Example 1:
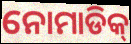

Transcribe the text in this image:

ନୋମାଡିକ୍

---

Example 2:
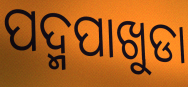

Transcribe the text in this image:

ପଦ୍ମପାଖୁଡା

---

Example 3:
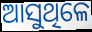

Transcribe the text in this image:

ଆସୁଥିଳେ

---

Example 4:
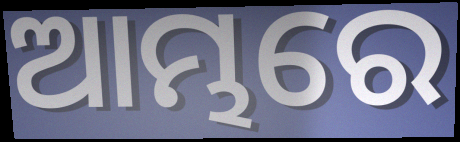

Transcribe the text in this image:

ଆମ୍ଭରେ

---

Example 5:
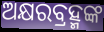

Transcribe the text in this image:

ଅକ୍ଷରବ୍ରହ୍ମଙ୍କ